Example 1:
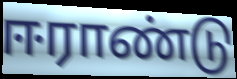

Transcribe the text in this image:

ஈராண்டு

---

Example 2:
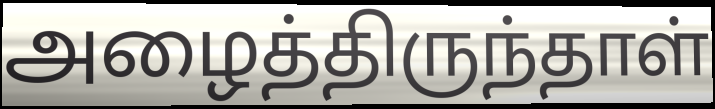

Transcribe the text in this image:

அழைத்திருந்தாள்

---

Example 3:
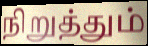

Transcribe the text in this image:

நிறுத்தும்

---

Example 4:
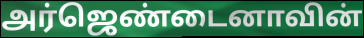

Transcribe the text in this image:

அர்ஜெண்டைனாவின்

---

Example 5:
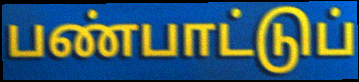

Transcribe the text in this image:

பண்பாட்டுப்